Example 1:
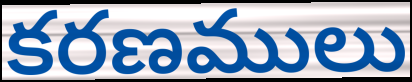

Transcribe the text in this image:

కరణములు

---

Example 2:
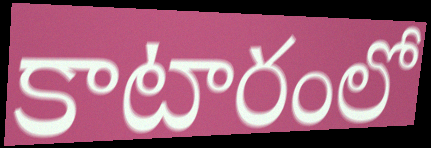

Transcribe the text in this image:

కాటారంలో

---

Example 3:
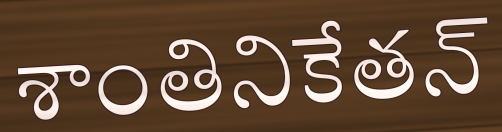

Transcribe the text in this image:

శాంతినికేతన్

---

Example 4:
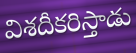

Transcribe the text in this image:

విశదీకరిస్తాడు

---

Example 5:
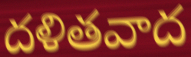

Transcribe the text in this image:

దళితవాద